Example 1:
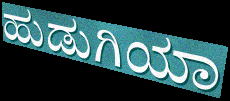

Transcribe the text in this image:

ಹುಡುಗಿಯಾ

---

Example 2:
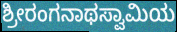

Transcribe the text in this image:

ಶ್ರೀರಂಗನಾಥಸ್ವಾಮಿಯ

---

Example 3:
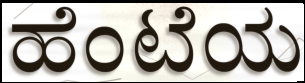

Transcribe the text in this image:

ಹೆಂಟೆಯ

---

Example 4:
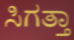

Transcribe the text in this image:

ಸಿಗತ್ತಾ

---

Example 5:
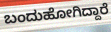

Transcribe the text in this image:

ಬಂದುಹೋಗಿದ್ದಾರೆ